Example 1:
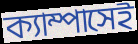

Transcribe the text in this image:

ক্যাম্পাসেই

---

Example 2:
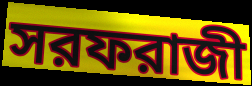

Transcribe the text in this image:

সরফরাজী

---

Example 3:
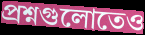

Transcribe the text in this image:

প্রশ্নগুলোতেও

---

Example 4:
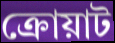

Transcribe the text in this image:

ক্রোয়াট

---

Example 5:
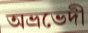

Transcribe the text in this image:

অভ্রভেদী